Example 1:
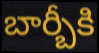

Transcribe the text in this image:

బార్బీకి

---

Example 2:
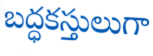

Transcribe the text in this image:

బద్ధకస్తులుగా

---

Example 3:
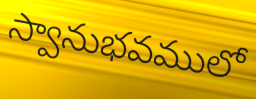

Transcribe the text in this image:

స్వానుభవములో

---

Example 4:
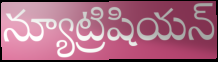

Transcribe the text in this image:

న్యూట్రిషియన్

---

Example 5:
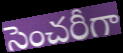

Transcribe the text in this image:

సెంచరీగా